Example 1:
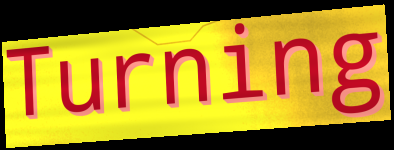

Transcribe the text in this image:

Turning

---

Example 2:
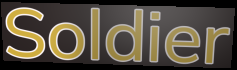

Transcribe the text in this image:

Soldier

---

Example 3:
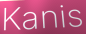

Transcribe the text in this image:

Kanis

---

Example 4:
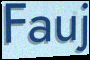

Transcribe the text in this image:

Fauj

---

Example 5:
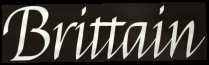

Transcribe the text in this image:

Brittain